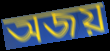
অজয়